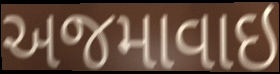
અજમાવાઇ